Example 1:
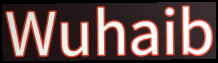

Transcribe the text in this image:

Wuhaib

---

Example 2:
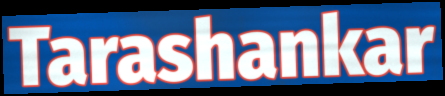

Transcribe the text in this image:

Tarashankar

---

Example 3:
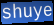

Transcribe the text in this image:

shuye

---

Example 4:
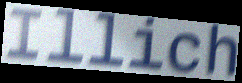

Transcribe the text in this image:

Illich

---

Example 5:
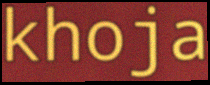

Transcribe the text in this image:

khoja